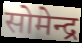
सोमेन्द्र